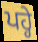
ਪਹ੍ਹੇ